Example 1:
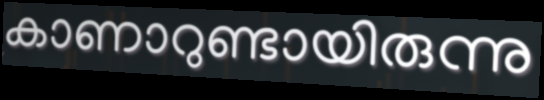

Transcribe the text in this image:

കാണാറുണ്ടായിരുന്നു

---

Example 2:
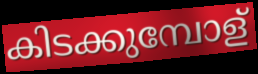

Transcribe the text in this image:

കിടക്കുമ്പോള്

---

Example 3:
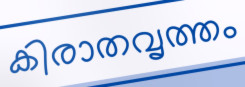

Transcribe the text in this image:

കിരാതവൃത്തം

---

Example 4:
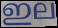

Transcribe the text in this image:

ഇല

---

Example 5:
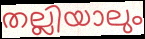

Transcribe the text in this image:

തല്ലിയാലും